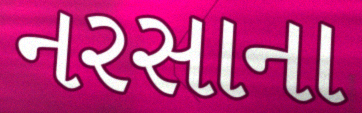
નરસાના